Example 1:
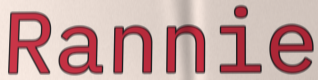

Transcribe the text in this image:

Rannie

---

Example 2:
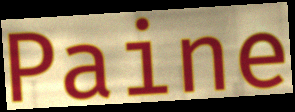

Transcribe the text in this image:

Paine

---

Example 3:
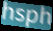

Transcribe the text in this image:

hsph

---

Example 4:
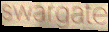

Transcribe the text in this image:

swargate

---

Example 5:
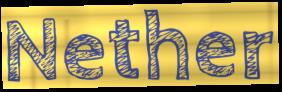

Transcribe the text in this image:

Nether